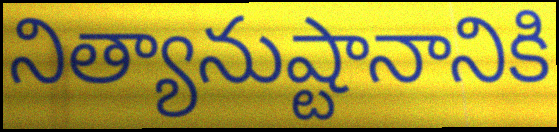
నిత్యానుష్టానానికి